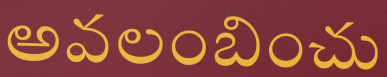
అవలంబించు